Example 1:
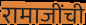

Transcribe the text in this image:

रामाजींची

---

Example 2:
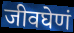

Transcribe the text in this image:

जीवघेणं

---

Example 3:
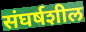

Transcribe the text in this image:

संघर्षशील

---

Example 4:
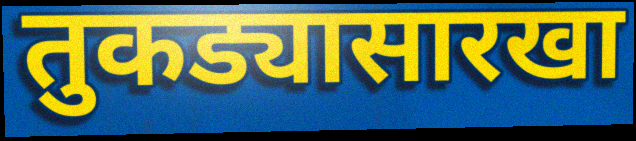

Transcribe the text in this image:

तुकड्यासारखा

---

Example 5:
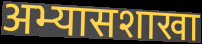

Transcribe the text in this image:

अभ्यासशाखा